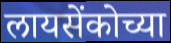
लायसेंकोच्या